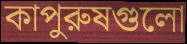
কাপুরুষগুলো